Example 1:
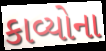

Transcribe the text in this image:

કાવ્યોના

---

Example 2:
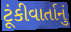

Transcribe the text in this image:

ટૂંકીવાર્તાનું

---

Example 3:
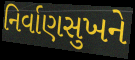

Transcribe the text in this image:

નિર્વાણસુખને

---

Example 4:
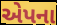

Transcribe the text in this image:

એપના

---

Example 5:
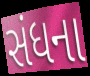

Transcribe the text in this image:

સંધના